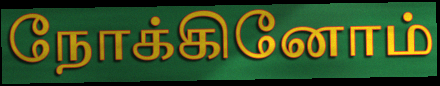
நோக்கினோம்